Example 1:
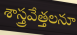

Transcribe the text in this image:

శాస్త్రవేత్తలనూ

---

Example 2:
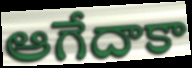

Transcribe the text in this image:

ఆగేదాకా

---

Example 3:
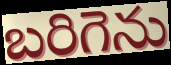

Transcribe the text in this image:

బరిగెను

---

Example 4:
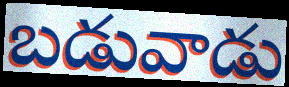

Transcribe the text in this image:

బడువాడు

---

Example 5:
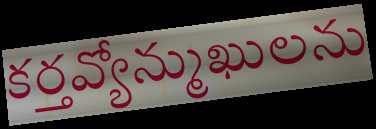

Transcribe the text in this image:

కర్తవ్యోన్ముఖులను